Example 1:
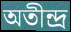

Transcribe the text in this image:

অতীন্দ্র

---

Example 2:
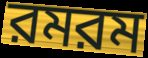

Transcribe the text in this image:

রমরম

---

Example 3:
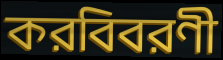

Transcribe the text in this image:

করবিবরণী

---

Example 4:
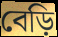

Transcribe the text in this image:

বেড়ি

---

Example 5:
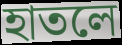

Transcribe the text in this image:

হাতলে